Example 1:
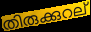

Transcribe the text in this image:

തിരുക്കുറല്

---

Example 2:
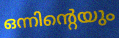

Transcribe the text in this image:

ഒന്നിന്റെയും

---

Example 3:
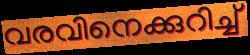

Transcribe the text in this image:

വരവിനെക്കുറിച്ച്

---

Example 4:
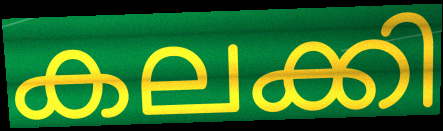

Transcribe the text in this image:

കലക്കി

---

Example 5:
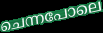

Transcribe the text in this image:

ചെന്നപോലെ